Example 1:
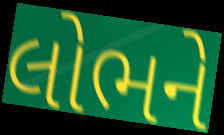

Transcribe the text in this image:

લોભને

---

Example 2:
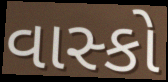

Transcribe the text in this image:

વાસ્કો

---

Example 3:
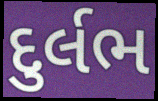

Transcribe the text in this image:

દુર્લભ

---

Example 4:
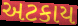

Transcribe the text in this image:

અટકાય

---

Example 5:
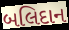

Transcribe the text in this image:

બલિદાન